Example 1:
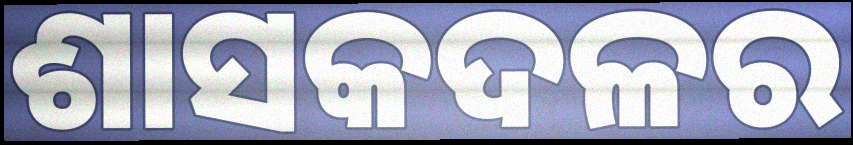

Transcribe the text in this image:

ଶାସକଦଳର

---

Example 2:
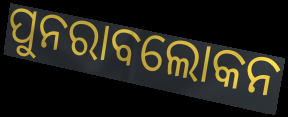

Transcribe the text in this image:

ପୁନରାବଲୋକନ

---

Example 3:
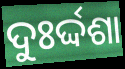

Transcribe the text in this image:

ଦୁଃର୍ଦ୍ଦଶା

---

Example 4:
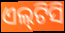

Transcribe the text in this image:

ଏଲ୍‌ଟିସି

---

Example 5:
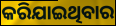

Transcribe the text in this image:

କରିଯାଇଥିବାର